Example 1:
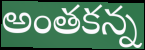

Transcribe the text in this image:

అంతకన్న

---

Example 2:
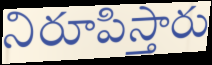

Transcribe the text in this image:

నిరూపిస్తారు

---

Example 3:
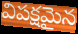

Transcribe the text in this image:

విపక్షమైన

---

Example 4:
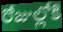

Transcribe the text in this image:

రోజుల్లోకి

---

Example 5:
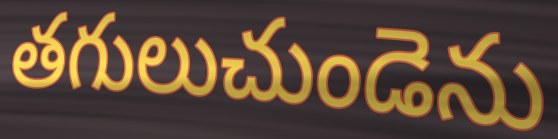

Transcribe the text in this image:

తగులుచుండెను